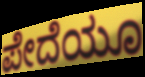
ಪೇದೆಯೂ